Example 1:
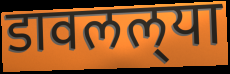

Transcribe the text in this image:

डावलल्या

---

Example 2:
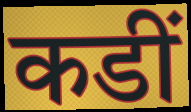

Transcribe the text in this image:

कडीं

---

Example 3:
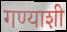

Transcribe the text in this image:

गण्याशी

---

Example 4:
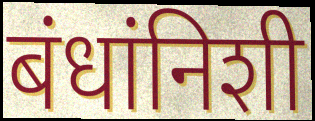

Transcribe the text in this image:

बंधांनिशी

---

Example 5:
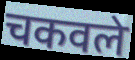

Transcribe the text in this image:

चकवले